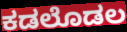
ಕಡಲೊಡಲ